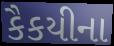
કૈકયીના